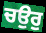
ਚਉਰੁ